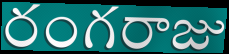
రంగరాజు